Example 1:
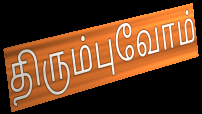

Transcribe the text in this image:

திரும்புவோம்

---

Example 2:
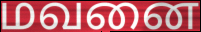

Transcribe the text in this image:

மவனை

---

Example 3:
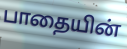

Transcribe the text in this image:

பாதையின்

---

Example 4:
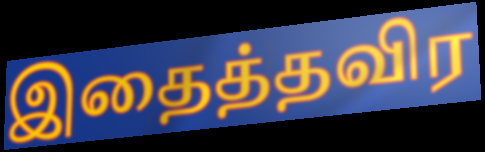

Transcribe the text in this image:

இதைத்தவிர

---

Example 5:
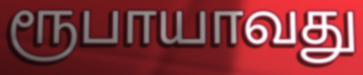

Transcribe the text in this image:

ரூபாயாவது